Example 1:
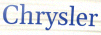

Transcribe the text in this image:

Chrysler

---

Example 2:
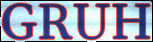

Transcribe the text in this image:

GRUH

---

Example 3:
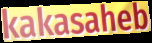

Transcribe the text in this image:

kakasaheb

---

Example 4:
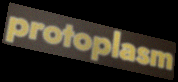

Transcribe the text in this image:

protoplasm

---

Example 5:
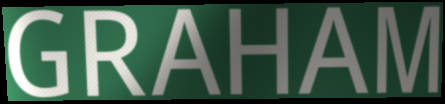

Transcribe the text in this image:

GRAHAM